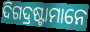
ଦିଗଦ୍ରଷ୍ଟାମାନେ